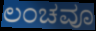
ಲಂಚವೂ